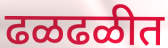
ढळढळीत